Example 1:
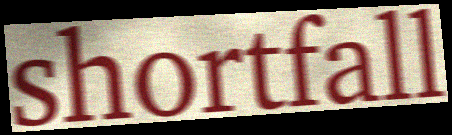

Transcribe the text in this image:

shortfall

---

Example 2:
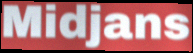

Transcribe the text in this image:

Midjans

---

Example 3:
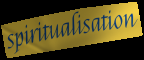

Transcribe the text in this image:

spiritualisation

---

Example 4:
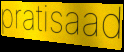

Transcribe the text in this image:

pratisaad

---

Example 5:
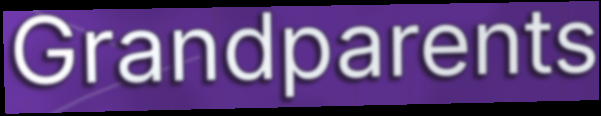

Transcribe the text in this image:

Grandparents